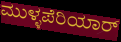
ಮುಳ್ಳಪೆರಿಯಾರ್